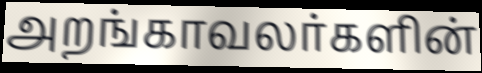
அறங்காவலர்களின்